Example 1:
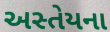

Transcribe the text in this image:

અસ્તેયના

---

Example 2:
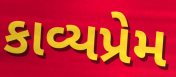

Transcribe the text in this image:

કાવ્યપ્રેમ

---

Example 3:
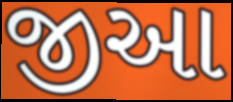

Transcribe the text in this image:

જીઆ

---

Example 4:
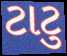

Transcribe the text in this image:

ટાટુ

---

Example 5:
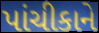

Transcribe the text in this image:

પાંચીકાને